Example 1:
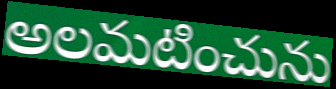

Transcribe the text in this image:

అలమటించును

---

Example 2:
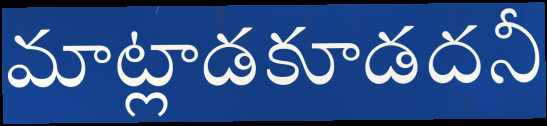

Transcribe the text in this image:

మాట్లాడకూడదనీ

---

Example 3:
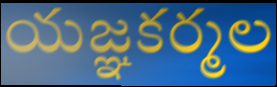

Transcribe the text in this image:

యజ్ఞకర్మల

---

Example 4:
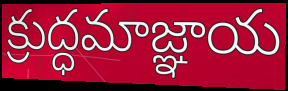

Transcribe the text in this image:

క్రుద్ధమాజ్ఞాయ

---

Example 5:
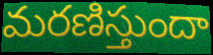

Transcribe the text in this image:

మరణిస్తుందా